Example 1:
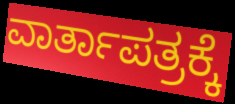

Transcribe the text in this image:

ವಾರ್ತಾಪತ್ರಕ್ಕೆ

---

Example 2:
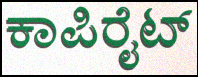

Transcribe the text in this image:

ಕಾಪಿರೈಟ್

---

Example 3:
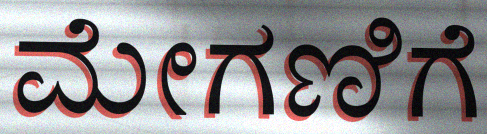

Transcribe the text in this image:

ಮೇಗಣಿಗೆ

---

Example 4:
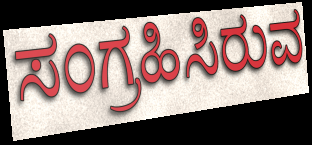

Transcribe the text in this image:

ಸಂಗ್ರಹಿಸಿರುವ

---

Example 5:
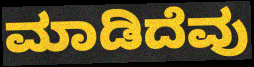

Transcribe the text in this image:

ಮಾಡಿದೆವು